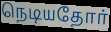
நெடியதோர்